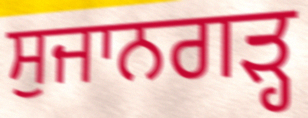
ਸੁਜਾਨਗੜ੍ਹ